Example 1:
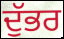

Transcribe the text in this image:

ਦੁੱਭਰ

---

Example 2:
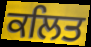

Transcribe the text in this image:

ਕਲਿਤ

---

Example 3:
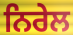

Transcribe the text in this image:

ਨਿਰੇਲ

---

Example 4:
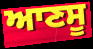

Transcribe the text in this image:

ਆਣਸੂ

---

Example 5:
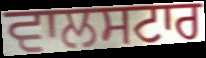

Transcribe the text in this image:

ਵਾਲਸਟਾਰ